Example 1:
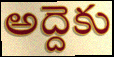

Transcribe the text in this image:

అద్దెకు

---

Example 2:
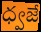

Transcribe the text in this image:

ధ్వజే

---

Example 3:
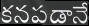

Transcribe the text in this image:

కనపడానే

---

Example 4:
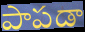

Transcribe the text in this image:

పాపడా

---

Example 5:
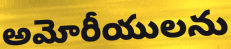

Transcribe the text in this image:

అమోరీయులను